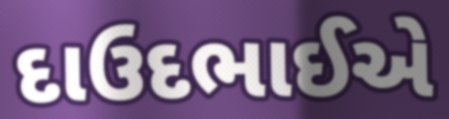
દાઉદભાઈએ